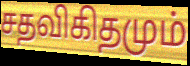
சதவிகிதமும்